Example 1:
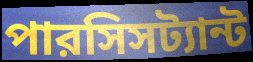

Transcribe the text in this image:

পারসিসট্যান্ট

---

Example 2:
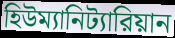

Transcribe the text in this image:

হিউম্যানিট্যারিয়ান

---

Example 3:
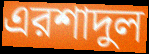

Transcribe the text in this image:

এরশাদুল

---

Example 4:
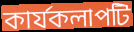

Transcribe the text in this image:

কার্যকলাপটি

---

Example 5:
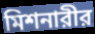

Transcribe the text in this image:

মিশনারীর